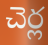
చెర్ల